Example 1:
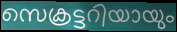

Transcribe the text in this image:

സെക്രട്ടറിയായും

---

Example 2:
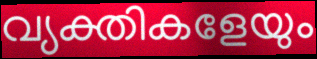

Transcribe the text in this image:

വ്യക്തികളേയും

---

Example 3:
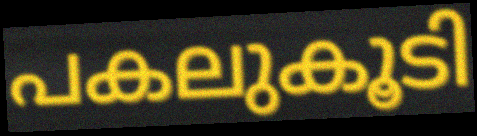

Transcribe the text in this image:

പകലുകൂടി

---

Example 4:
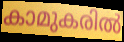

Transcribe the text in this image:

കാമുകരിൽ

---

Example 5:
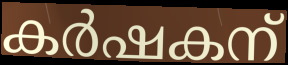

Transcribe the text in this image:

കർഷകന്